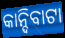
କାନ୍ଦିବାଟା